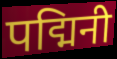
पद्मिनी